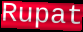
Rupat